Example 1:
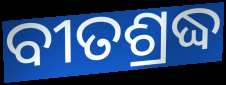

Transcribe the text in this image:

ବୀତଶ୍ରଦ୍ଧ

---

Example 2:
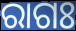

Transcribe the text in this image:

ରାଗଃ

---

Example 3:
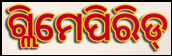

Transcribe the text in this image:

ଗ୍ଲିମେପିରିଡ୍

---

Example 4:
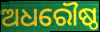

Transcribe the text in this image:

ଅଧରୌଷ୍ଠ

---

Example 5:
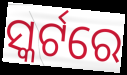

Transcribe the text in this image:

ସ୍କର୍ଟରେ